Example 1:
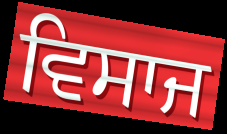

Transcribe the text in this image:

ਵਿਸਾਜ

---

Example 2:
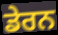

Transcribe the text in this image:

ਡੇਰਨ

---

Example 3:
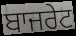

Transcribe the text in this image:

ਬਾਜਰੇਟ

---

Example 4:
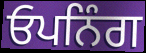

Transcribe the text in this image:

ਓਪਨਿੰਗ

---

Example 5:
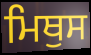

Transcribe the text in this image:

ਮਿਥੁਸ